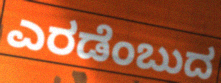
ಎರಡೆಂಬುದ